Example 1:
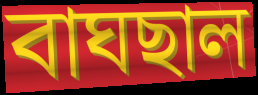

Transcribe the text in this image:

বাঘছাল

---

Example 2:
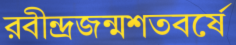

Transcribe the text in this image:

রবীন্দ্রজন্মশতবর্ষে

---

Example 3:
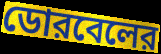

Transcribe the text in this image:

ডোরবেলের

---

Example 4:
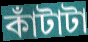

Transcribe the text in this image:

কাঁটাটা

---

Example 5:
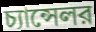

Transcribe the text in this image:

চ্যান্সেলর